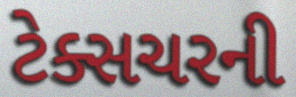
ટેક્સચરની